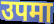
उपमा